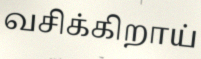
வசிக்கிறாய்